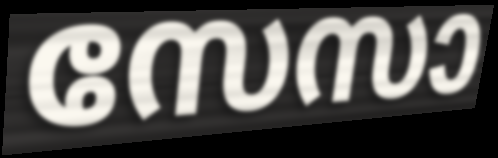
സേസാ